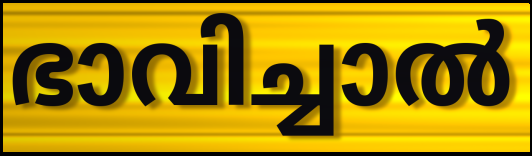
ഭാവിച്ചാൽ